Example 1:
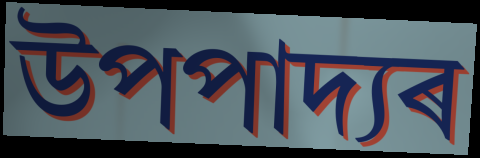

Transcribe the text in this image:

উপপাদ্যৰ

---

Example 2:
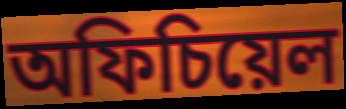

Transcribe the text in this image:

অফিচিয়েল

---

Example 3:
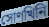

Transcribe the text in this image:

সোণখিনি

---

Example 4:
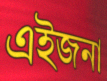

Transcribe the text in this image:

এইজনা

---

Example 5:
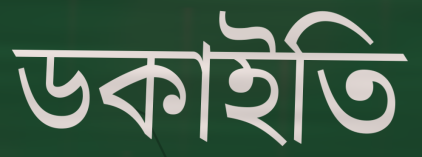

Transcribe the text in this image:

ডকাইতি